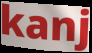
kanj